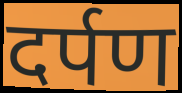
दर्पण